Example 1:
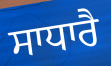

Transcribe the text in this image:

ਸਾਧਾਰੈ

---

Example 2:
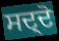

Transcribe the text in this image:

ਸਦ੍ਦੋ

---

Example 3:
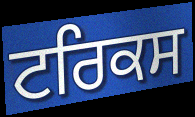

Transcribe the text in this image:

ਟਰਿਕਸ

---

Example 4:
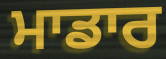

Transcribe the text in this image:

ਮਾਡਾਰ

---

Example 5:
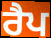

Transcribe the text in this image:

ਰੈਪ